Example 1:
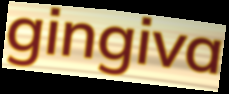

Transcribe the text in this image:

gingiva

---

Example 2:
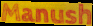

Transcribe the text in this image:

Manush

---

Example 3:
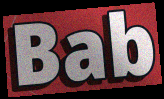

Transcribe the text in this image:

Bab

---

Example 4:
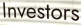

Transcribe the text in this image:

Investors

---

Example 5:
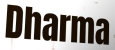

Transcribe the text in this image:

Dharma